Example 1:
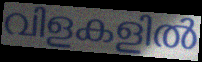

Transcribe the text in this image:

വിളകളിൽ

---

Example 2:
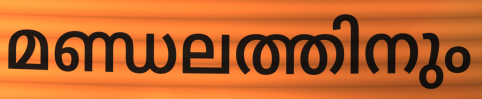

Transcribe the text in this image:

മണ്ഡലത്തിനും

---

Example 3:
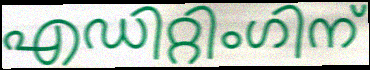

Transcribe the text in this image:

എഡിറ്റിംഗിന്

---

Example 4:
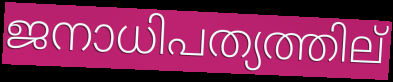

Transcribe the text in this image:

ജനാധിപത്യത്തില്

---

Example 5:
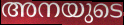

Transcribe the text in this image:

അനയുടെ